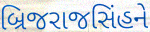
બ્રિજરાજસિંહને